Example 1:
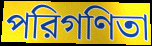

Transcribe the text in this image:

পরিগণিতা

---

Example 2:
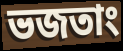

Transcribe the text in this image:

ভজতাং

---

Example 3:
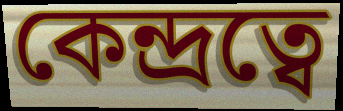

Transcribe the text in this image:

কেন্দ্রত্বে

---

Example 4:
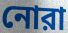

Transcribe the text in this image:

নোরা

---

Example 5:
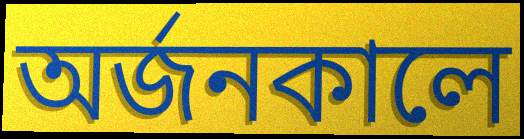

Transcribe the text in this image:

অর্জনকালে